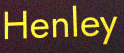
Henley